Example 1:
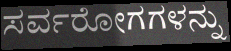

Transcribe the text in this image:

ಸರ್ವರೋಗಗಳನ್ನು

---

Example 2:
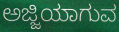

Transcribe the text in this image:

ಅಜ್ಜಿಯಾಗುವ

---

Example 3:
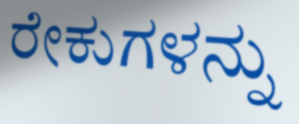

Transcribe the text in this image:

ರೇಕುಗಳನ್ನು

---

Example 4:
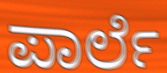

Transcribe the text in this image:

ಪಾರ್ಲೆ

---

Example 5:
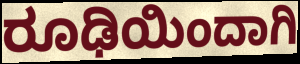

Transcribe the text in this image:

ರೂಢಿಯಿಂದಾಗಿ